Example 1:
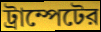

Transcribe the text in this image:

ট্রাম্পেটের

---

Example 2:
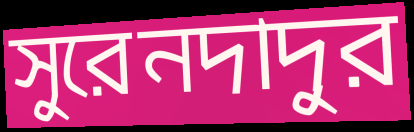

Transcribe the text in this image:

সুরেনদাদুর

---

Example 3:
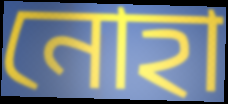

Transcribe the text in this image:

নোহা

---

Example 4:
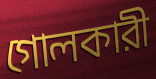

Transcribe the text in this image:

গোলকারী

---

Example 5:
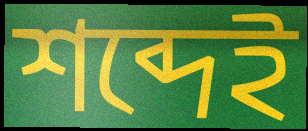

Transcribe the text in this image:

শব্দেই